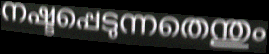
നഷ്ടപ്പെടുന്നതെന്തും